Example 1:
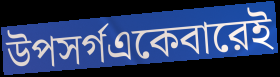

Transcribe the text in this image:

উপসর্গএকেবারেই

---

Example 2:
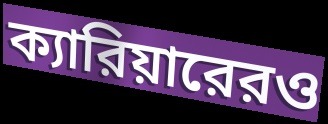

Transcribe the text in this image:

ক্যারিয়ারেরও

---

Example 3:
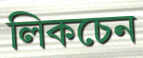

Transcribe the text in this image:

লিকচেন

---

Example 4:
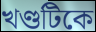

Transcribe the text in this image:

খণ্ডটিকে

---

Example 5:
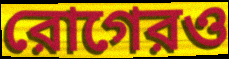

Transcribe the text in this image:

রোগেরও